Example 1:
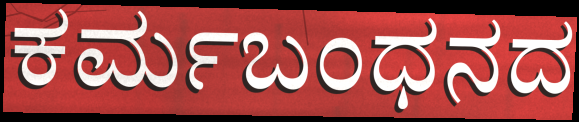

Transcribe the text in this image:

ಕರ್ಮಬಂಧನದ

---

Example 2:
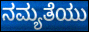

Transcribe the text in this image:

ನಮ್ಯತೆಯು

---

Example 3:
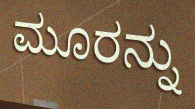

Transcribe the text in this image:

ಮೂರನ್ನು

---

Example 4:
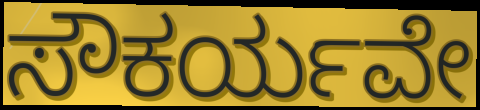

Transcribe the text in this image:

ಸೌಕರ್ಯವೇ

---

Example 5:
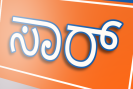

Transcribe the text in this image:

ಸಾರ್